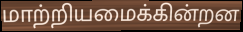
மாற்றியமைக்கின்றன